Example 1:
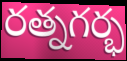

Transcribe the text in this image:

రత్నగర్భ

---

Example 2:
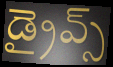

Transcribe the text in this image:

డ్రైవ్స్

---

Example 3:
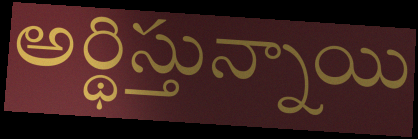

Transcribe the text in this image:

అర్థిస్తున్నాయి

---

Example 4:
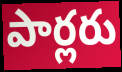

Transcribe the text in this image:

పార్లరు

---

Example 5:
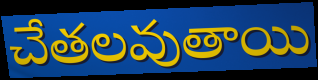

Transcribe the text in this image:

చేతలవుతాయి